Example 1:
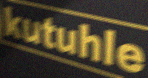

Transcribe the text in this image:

kutuhle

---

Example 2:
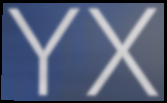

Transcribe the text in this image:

YX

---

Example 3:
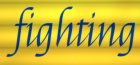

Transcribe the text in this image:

fighting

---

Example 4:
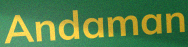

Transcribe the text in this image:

Andaman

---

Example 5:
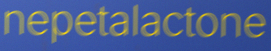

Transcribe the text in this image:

nepetalactone